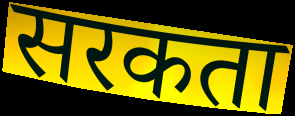
सरकता